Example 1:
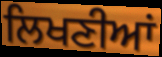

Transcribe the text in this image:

ਲਿਖਣੀਆਂ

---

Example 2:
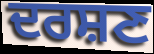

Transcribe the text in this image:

ਦਰਸ਼ਣ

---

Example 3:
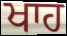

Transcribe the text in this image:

ਖਾਹ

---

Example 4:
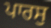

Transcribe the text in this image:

ਪਾਰਸੁ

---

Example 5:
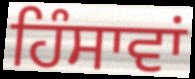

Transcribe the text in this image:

ਹਿੰਸਾਵਾਂ